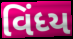
વિંધ્ય